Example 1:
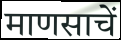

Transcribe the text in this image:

माणसाचें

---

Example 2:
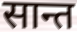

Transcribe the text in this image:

सान्त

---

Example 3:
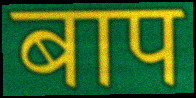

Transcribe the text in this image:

बाप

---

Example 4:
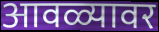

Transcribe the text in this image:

आवळ्यावर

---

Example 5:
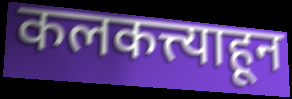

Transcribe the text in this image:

कलकत्त्याहून